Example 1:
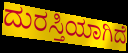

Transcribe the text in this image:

ದುರಸ್ತಿಯಾಗಿದೆ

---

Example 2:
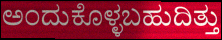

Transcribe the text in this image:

ಅಂದುಕೊಳ್ಳಬಹುದಿತ್ತು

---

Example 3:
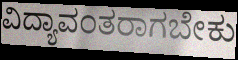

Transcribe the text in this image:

ವಿದ್ಯಾವಂತರಾಗಬೇಕು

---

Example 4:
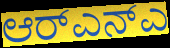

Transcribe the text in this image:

ಆರ್‌ಎನ್ಎ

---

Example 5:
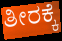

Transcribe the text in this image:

ತೀರಕ್ಕೆ